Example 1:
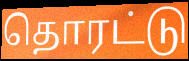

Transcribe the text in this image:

தொரட்டு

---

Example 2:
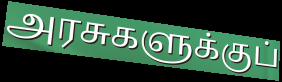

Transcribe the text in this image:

அரசுகளுக்குப்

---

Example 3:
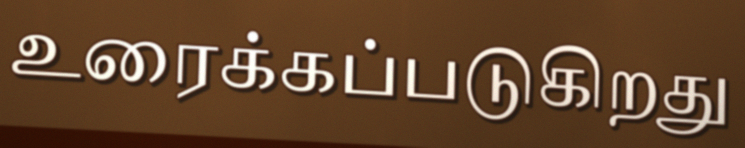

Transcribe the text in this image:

உரைக்கப்படுகிறது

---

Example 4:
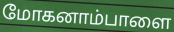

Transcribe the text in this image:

மோகனாம்பாளை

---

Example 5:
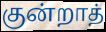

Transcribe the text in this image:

குன்றாத்